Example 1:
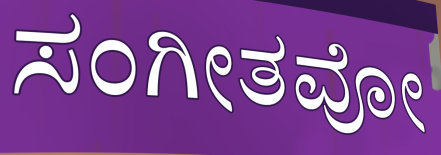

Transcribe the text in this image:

ಸಂಗೀತವೋ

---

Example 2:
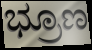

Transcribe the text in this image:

ಭ್ರೂಣ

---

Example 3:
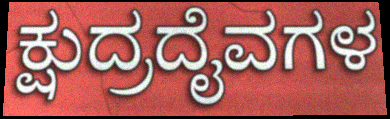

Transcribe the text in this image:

ಕ್ಷುದ್ರದೈವಗಳ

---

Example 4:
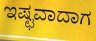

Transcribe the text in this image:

ಇಷ್ಟವಾದಾಗ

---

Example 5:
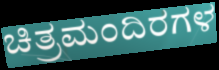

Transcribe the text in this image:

ಚಿತ್ರಮಂದಿರಗಳ